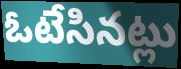
ఓటేసినట్లు